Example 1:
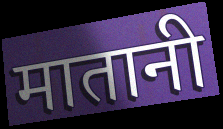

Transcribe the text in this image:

मातानी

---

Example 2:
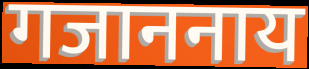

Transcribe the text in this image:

गजाननाय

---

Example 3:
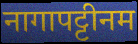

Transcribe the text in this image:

नागापट्टीनम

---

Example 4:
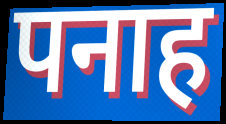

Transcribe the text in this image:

पनाह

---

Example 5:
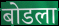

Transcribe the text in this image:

बोडला